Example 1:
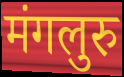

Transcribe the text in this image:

मंगलुरु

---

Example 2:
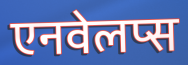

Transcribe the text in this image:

एनवेलप्स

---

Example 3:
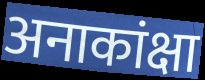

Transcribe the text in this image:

अनाकांक्षा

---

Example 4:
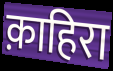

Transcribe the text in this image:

क़ाहिरा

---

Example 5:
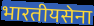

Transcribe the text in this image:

भारतीयसेना